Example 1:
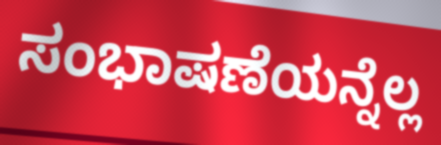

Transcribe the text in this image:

ಸಂಭಾಷಣೆಯನ್ನೆಲ್ಲ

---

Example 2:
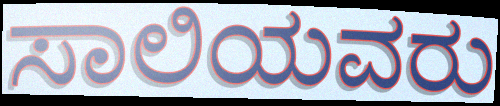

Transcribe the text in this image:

ಸಾಲಿಯವರು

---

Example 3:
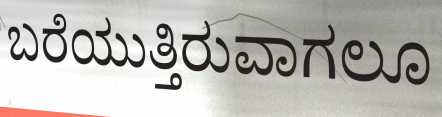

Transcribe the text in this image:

ಬರೆಯುತ್ತಿರುವಾಗಲೂ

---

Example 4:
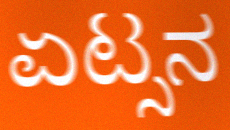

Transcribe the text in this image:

ಏಟ್ಸನ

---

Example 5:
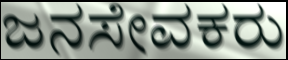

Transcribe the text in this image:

ಜನಸೇವಕರು